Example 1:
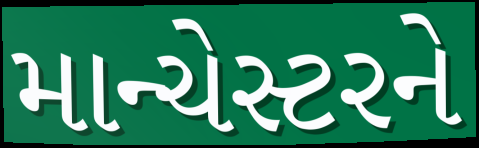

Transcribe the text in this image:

માન્ચેસ્ટરને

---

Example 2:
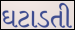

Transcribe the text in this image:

ઘટાડતી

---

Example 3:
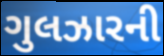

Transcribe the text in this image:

ગુલઝારની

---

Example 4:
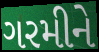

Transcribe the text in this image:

ગરમીને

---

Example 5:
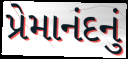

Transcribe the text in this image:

પ્રેમાનંદનું